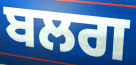
ਬਲਗ